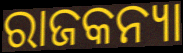
ରାଜକନ୍ୟା